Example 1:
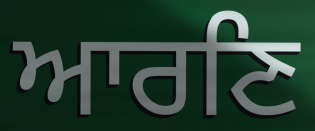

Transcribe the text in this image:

ਆਰਣਿ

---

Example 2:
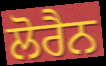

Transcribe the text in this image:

ਲੋਰੈਨ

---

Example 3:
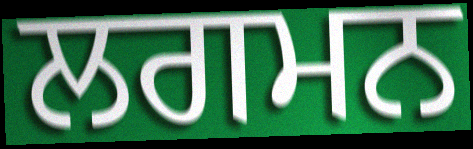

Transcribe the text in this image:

ਲਗਮਨ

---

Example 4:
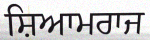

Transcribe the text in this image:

ਸ਼ਿਆਮਰਾਜ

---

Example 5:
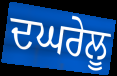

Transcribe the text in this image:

ਦਘਰੇਲੂ